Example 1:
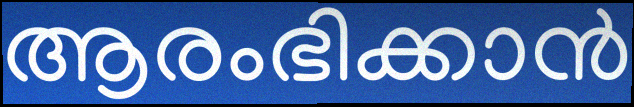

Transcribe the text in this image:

ആരംഭിക്കാൻ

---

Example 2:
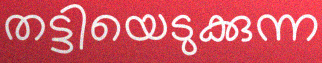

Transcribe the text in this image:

തട്ടിയെടുക്കുന്ന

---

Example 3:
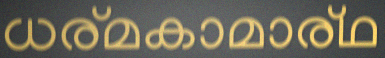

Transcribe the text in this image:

ധര്മകാമാര്ഥ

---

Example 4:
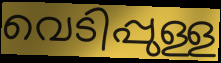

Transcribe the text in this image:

വെടിപ്പുള്ള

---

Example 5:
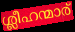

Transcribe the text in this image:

ശ്ലീഹന്മാര്